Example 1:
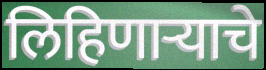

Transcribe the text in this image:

लिहिणाऱ्याचे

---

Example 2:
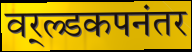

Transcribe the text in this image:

वर्ल्डकपनंतर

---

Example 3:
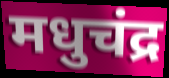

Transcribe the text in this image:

मधुचंद्र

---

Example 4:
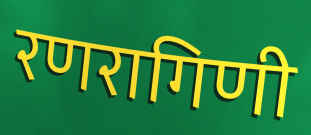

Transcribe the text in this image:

रणरागिणी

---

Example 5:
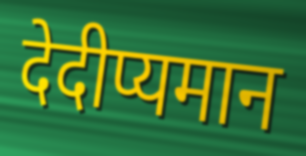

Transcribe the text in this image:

देदीप्यमान